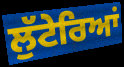
ਲੁੱਟੇਰਿਆਂ